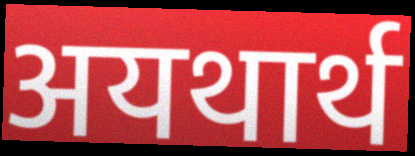
अयथार्थ